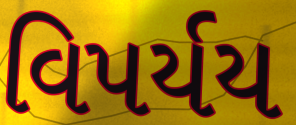
વિપર્યય